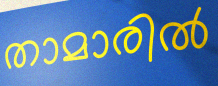
താമാരിൽ